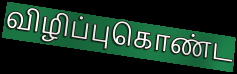
விழிப்புகொண்ட